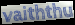
vaiththu